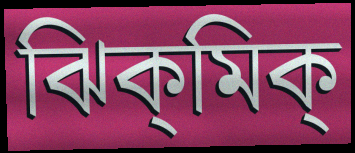
ঝিক্‌মিক্